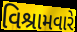
વિશ્રામવારે